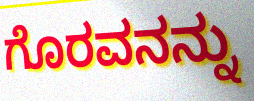
ಗೊರವನನ್ನು